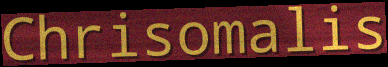
Chrisomalis